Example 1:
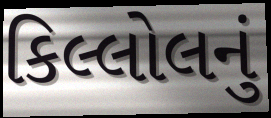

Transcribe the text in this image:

કિલ્લોલનું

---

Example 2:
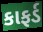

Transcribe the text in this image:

કાફર્ડ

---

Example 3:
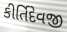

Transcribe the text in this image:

કીર્તિદેવજી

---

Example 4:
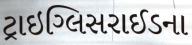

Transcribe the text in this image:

ટ્રાઇગ્લિસરાઈડના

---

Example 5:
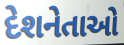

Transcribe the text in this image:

દેશનેતાઓ